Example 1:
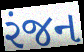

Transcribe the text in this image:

રંજન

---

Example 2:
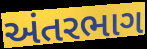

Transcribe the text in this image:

અંતરભાગ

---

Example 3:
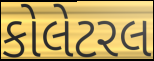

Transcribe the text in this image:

કોલેટરલ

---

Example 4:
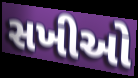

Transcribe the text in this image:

સખીઓ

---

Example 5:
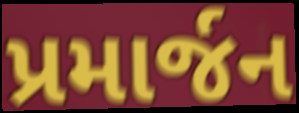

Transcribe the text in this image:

પ્રમાર્જન